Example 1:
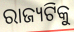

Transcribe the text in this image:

ରାଜ୍ୟଟିକୁ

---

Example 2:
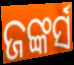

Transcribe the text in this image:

ଜଙ୍କର୍ସ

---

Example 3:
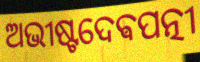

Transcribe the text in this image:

ଅଭୀଷ୍ଟଦେଵପତ୍ନୀ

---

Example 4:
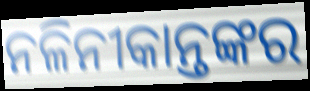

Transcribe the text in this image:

ନଳିନୀକାନ୍ତଙ୍କର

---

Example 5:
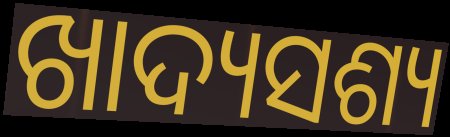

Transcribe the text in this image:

ଖାଦ୍ୟସଶ୍ୟ